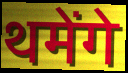
थमेंगे